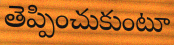
తెప్పించుకుంటూ